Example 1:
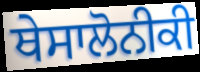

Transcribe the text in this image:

ਥੇਸਾਲੋਨੀਕੀ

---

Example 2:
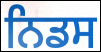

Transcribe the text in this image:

ਨਿਡਸ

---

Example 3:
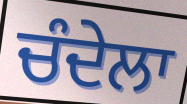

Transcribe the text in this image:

ਚੰਦੇਲਾ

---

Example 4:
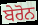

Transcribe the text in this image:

ਬੇਰੋਨ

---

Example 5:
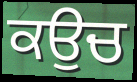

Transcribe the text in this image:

ਕਉਚ